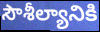
సౌశీల్యానికి